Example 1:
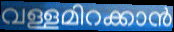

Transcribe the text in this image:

വള്ളമിറക്കാൻ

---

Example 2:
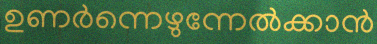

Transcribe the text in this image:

ഉണർന്നെഴുന്നേൽക്കാൻ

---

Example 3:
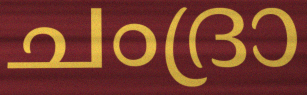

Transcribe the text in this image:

ചംദ്രാ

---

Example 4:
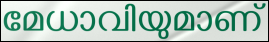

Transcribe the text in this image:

മേധാവിയുമാണ്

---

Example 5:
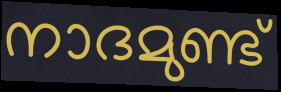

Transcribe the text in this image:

നാദമുണ്ട്